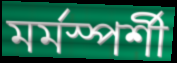
মর্মস্পর্শী